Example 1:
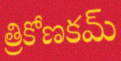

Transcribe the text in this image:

త్రికోణకమ్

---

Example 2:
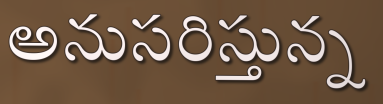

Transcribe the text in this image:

అనుసరిస్తున్న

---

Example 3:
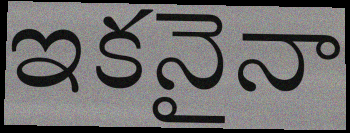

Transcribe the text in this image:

ఇకనైనా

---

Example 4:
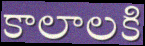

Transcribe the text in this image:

కాలాలకి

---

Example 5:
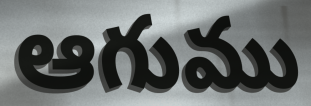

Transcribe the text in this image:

ఆగుము